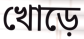
খোড়ে